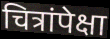
चित्रांपेक्षा